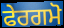
ਫੇਰਗਮੋ